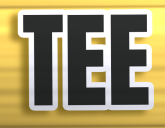
TEE